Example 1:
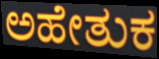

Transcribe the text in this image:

ಅಹೇತುಕ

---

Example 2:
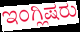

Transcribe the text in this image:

ಇಂಗ್ಲಿಷರು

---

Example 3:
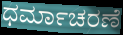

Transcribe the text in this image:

ಧರ್ಮಾಚರಣೆ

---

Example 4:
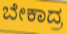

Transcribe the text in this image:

ಬೇಕಾದ್ರ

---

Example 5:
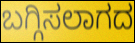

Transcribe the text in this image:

ಬಗ್ಗಿಸಲಾಗದ